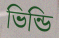
ভিন্ডি